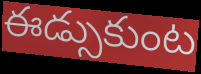
ఈడ్సుకుంట